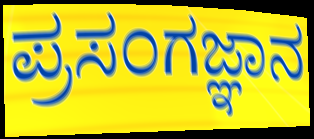
ಪ್ರಸಂಗಜ್ಞಾನ